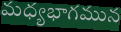
మధ్యభాగమున